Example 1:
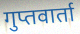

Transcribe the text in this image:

गुप्तवार्ता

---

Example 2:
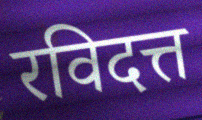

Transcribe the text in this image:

रविदत्त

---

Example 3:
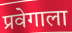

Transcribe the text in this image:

प्रवेगाला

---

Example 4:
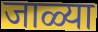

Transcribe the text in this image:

जाळ्या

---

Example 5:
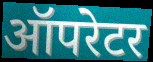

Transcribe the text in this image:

ऑपरेटर